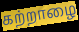
கற்றாழை